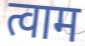
त्वाम